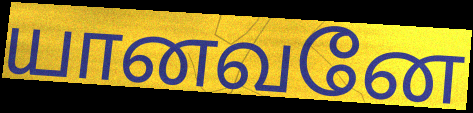
யானவனே